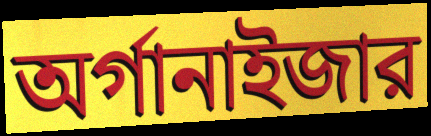
অর্গানাইজার